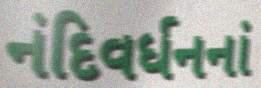
નંદિવર્ધનનાં